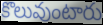
కొలువుంటారు